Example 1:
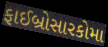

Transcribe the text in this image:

ફાઈબ્રોસારકોમા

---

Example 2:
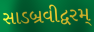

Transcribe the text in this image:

સાડબ્રવીદ્વરમ્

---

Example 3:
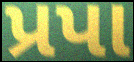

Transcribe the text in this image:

પ્રપા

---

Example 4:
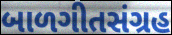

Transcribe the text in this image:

બાળગીતસંગ્રહ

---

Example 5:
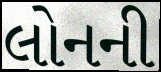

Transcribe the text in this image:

લોનની